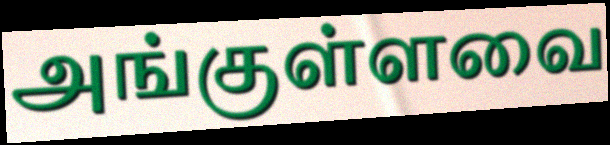
அங்குள்ளவை